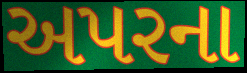
અપરના